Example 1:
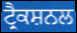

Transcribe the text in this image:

ਟ੍ਰੈਕਸ਼ਨਲ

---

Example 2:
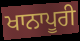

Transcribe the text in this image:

ਖਾਨਾਪੂਰੀ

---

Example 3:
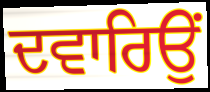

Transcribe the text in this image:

ਦਵਾਰਿਉਂ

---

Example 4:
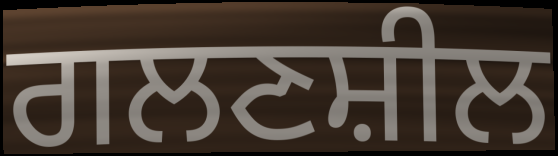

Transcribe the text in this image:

ਗਲਣਸ਼ੀਲ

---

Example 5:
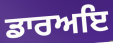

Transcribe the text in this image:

ਡਾਰਅਇ